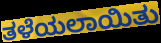
ತಳೆಯಲಾಯಿತು